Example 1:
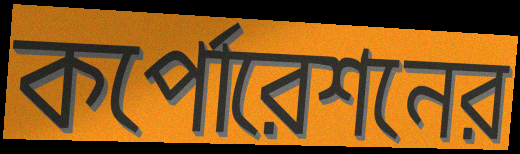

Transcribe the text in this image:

কর্পোরেশনের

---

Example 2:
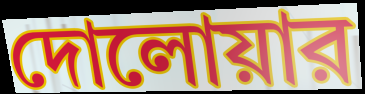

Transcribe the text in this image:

দোলোয়ার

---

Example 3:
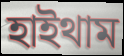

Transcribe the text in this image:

হাইথাম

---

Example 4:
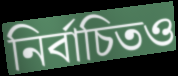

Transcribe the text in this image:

নির্বাচিতও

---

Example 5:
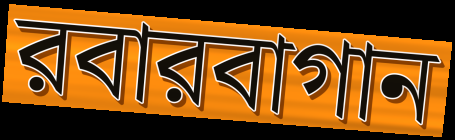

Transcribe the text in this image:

রবারবাগান